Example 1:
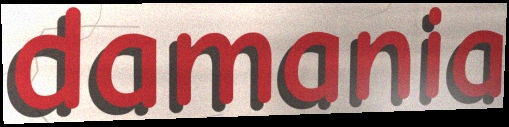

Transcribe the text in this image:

damania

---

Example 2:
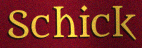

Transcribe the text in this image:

Schick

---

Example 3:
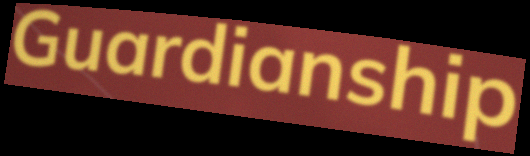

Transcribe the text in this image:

Guardianship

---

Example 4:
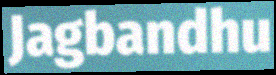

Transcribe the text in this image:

Jagbandhu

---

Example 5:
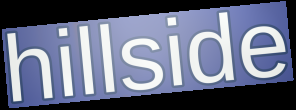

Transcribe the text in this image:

hillside